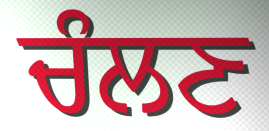
ਚੰਲਣ